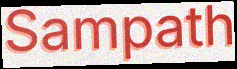
Sampath